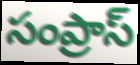
సంప్రాస్